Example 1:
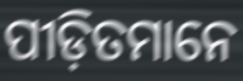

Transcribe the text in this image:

ପୀଡ଼ିତମାନେ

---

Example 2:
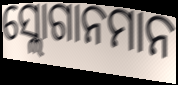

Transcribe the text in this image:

ସ୍ଲୋଗାନମାନ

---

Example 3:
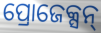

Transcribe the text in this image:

ପ୍ରୋଜେକ୍ସନ୍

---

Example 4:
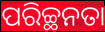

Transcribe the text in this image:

ପରିଚ୍ଛନତା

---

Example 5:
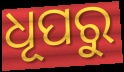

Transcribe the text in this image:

ଧୂପରୁ